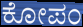
ಕೋಪಂ